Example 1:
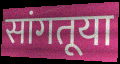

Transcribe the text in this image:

सांगतूया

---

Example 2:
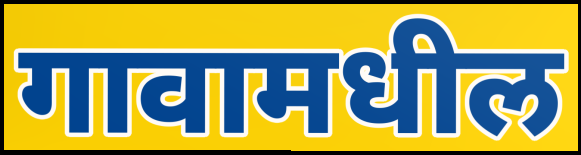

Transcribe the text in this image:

गावामधील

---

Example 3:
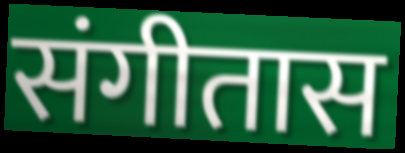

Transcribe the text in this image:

संगीतास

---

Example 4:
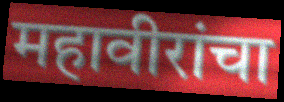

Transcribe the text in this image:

महावीरांचा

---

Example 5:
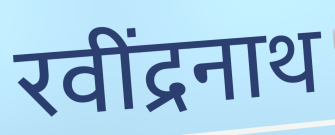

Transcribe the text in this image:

रवींद्रनाथ